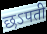
छऽपती